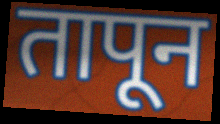
तापून